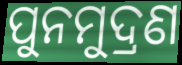
ପୁନମୁଦ୍ରଣ